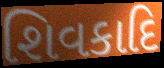
શિવકાદિ